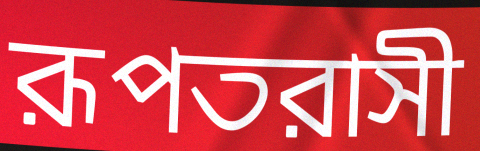
রূপতরাসী